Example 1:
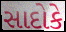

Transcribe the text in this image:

સાદોકે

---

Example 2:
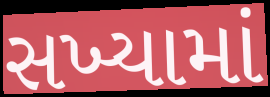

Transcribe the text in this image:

સખ્યામાં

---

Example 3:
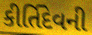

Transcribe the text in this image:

કીર્તિદેવની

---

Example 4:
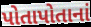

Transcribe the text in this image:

પોતાપોતાનાં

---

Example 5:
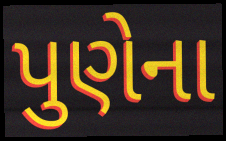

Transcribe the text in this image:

પુણેના